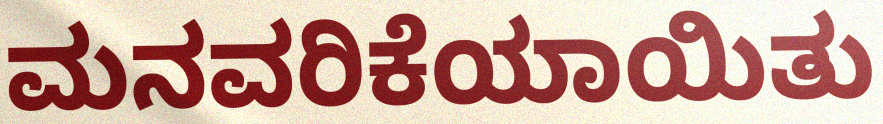
ಮನವರಿಕೆಯಾಯಿತು